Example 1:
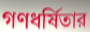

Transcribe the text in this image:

গণধর্ষিতার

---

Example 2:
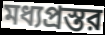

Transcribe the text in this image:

মধ্যপ্রস্তর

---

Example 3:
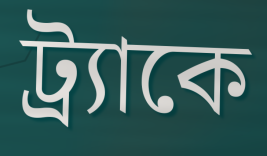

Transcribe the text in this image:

ট্র্যাকে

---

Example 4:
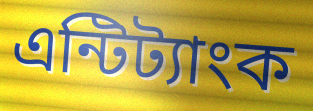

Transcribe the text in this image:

এন্টিট্যাংক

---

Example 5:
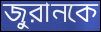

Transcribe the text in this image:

জুরানকে